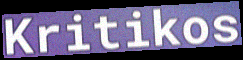
Kritikos